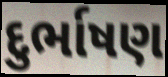
દુર્ભાષણ